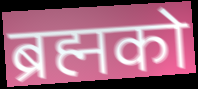
ब्रह्मको